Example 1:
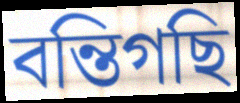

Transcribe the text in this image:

বন্তিগছি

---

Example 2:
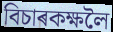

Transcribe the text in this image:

বিচাৰকক্ষলৈ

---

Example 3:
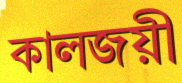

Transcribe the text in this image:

কালজয়ী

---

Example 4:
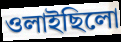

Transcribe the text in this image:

ওলাইছিলো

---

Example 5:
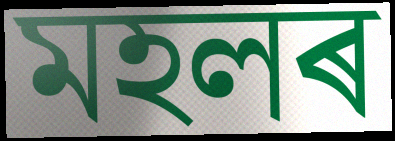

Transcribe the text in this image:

মহলৰ